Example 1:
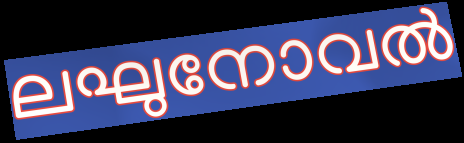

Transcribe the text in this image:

ലഘുനോവൽ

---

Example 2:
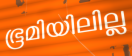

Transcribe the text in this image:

ഭൂമിയിലില്ല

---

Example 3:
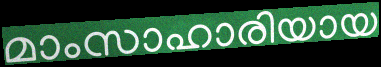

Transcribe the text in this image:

മാംസാഹാരിയായ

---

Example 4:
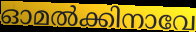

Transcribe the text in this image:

ഓമൽക്കിനാവേ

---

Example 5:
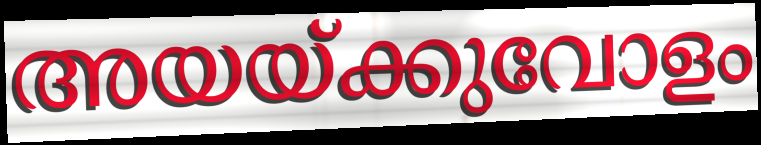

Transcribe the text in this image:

അയയ്ക്കുവോളം